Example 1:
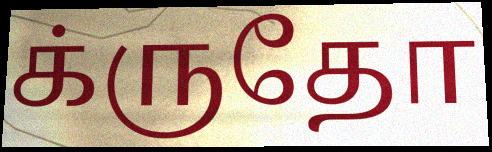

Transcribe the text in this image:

க்ருதோ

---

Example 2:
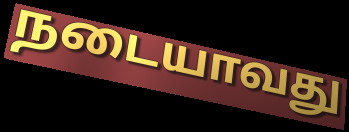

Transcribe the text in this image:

நடையாவது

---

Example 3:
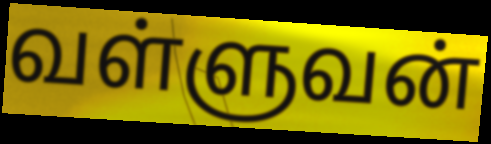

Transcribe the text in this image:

வள்ளுவன்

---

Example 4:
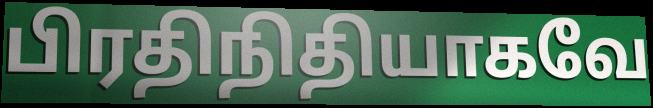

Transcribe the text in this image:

பிரதிநிதியாகவே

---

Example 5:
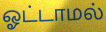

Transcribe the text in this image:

ஓட்டாமல்